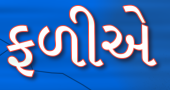
ફળીએ